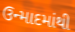
ઉન્માદમાંથી